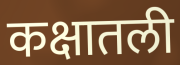
कक्षातली